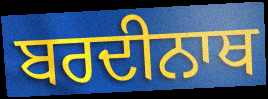
ਬਰਦੀਨਾਥ